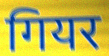
गियर